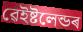
ৱেইষ্টলেন্ডৰ